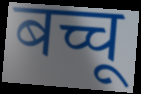
बच्चू